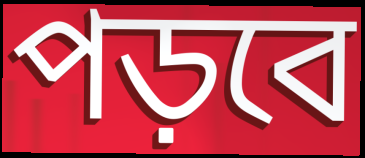
পড়বে